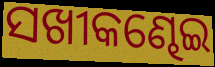
ସଖୀକଣ୍ଢେଇ